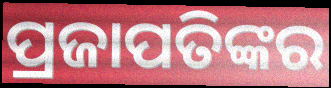
ପ୍ରଜାପତିଙ୍କର